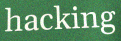
hacking